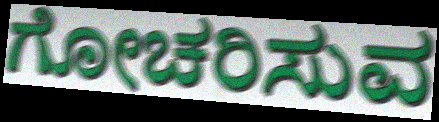
ಗೋಚರಿಸುವ